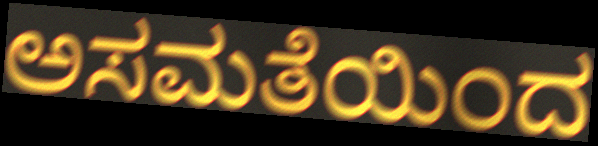
ಅಸಮತೆಯಿಂದ